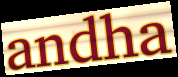
andha